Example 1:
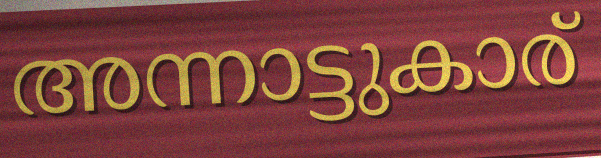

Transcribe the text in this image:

അന്നാട്ടുകാര്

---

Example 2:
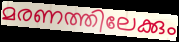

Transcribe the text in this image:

മരണത്തിലേക്കും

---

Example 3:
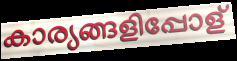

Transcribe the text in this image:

കാര്യങ്ങളിപ്പോള്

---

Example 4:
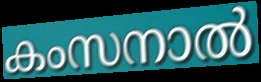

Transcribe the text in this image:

കംസനാൽ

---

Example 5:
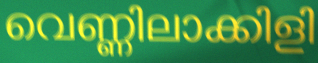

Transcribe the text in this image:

വെണ്ണിലാക്കിളി